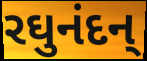
રઘુનંદન્